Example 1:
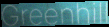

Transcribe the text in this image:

Greenhill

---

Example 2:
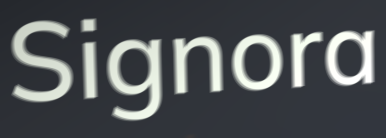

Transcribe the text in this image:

Signora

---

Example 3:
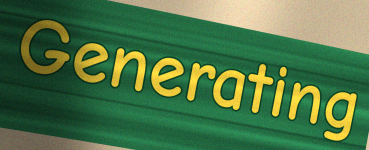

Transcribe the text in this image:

Generating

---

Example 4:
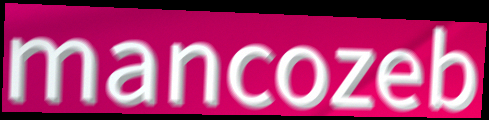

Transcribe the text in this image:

mancozeb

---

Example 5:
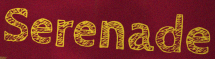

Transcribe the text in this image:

Serenade